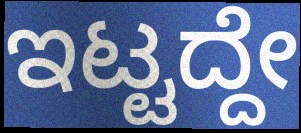
ಇಟ್ಟದ್ದೇ